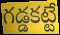
గడ్డకట్టే